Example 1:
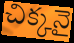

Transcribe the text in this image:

చిక్కనై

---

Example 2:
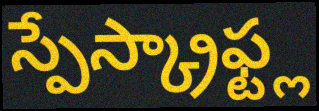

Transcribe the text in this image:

స్పేస్క్రాఫ్ట్ల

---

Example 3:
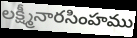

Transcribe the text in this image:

లక్ష్మీనారసింహము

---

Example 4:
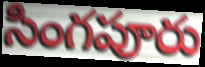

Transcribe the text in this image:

సింగపూరు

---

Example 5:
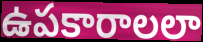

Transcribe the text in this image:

ఉపకారాలలా